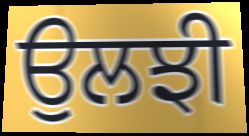
ਉਲਝੀ